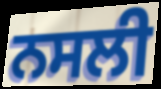
ਨਸਲੀ